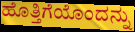
ಹೊತ್ತಿಗೆಯೊಂದನ್ನು